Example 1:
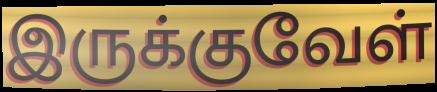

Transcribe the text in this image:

இருக்குவேள்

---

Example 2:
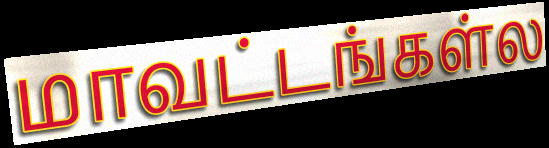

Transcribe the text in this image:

மாவட்டங்கள்ல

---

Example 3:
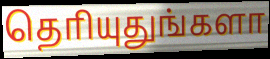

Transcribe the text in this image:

தெரியுதுங்களா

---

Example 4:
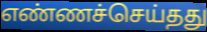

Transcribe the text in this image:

எண்ணச்செய்தது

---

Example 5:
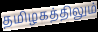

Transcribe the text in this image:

தமிழகத்திலும்